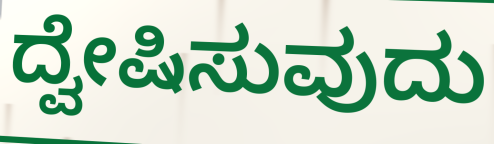
ದ್ವೇಷಿಸುವುದು